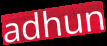
adhun